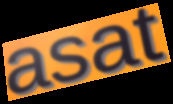
asat